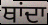
ਥਾਂਦਾ